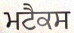
ਮਟੈਕਸ